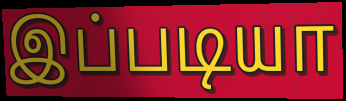
இப்படியா